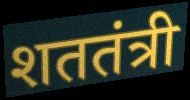
शततंत्री